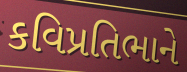
કવિપ્રતિભાને